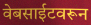
वेबसाईटवरून